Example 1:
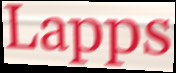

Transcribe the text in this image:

Lapps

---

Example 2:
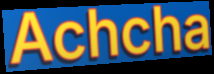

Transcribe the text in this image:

Achcha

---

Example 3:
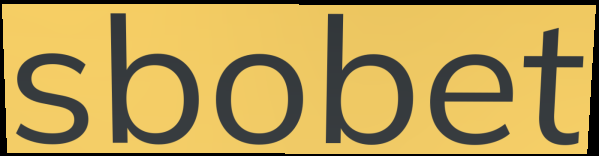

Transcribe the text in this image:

sbobet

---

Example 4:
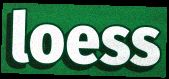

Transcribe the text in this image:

loess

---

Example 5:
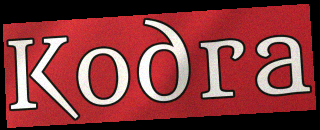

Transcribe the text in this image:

Kodra